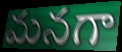
మనగా